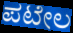
ಪಟೇಲ